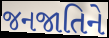
જનજાતિને